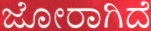
ಜೋರಾಗಿದೆ